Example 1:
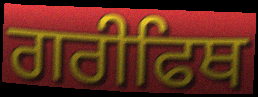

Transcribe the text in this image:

ਗਰੀਫਿਥ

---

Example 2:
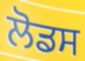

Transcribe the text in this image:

ਲੋਡਸ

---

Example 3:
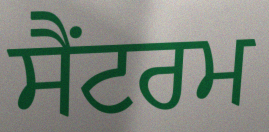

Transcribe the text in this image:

ਸੈਂਟਰਮ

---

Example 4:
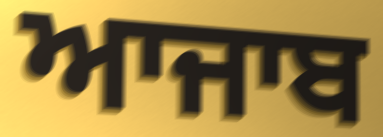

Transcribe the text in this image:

ਆਜਾਬ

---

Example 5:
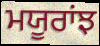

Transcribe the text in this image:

ਮਯੂਰਾਂਝ